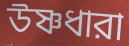
উষ্ণধারা